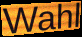
Wahl